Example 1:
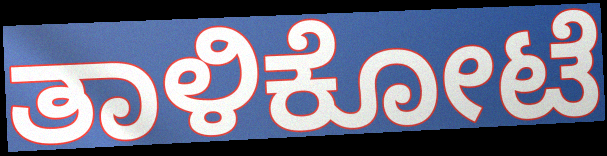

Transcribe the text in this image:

ತಾಳಿಕೋಟೆ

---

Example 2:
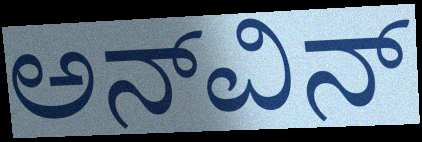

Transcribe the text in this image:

ಅನ್‌ವಿನ್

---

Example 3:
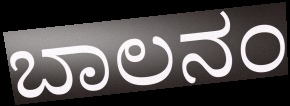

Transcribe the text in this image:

ಬಾಲನಂ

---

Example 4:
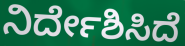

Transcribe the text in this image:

ನಿರ್ದೇಶಿಸಿದೆ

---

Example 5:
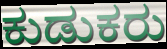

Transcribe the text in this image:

ಕುಡುಕರು